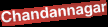
Chandannagar